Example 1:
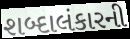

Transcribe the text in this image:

શબ્દાલંકારની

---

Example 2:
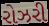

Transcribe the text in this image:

રોઝરી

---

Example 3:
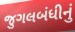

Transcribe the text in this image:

જુગલબંધીનું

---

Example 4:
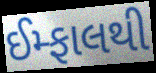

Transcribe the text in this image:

ઈમ્ફાલથી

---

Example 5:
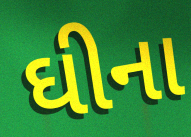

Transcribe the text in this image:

ઘીના